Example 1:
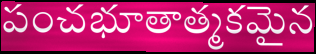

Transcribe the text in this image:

పంచభూతాత్మకమైన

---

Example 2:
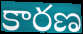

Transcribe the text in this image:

కారణ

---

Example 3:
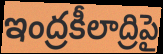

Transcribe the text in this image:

ఇంద్రకీలాద్రిపై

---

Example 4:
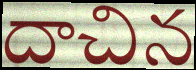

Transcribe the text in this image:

దాచిన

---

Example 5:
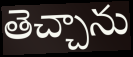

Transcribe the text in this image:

తెచ్చాను